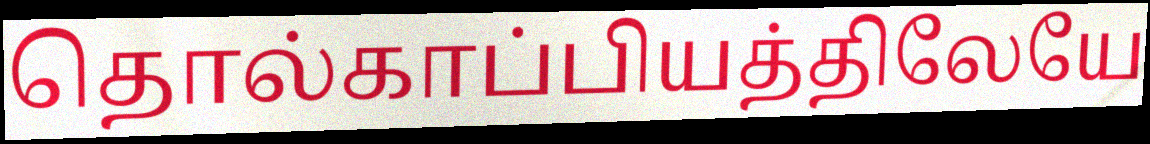
தொல்காப்பியத்திலேயே